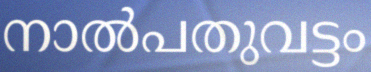
നാൽപതുവട്ടം